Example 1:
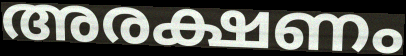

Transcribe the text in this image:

അരക്ഷണം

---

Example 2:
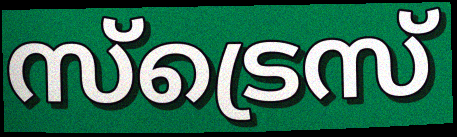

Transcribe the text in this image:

സ്ട്രെസ്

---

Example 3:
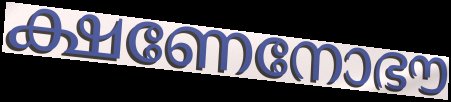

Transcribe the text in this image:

ക്ഷണേനോഭൗ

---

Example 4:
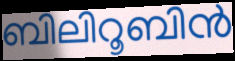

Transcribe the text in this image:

ബിലിറൂബിൻ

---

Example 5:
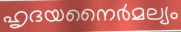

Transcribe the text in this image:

ഹൃദയനൈർമല്യം